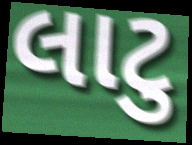
લાટુ